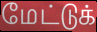
மேட்டுக்